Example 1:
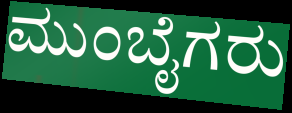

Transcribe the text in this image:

ಮುಂಬೈಗರು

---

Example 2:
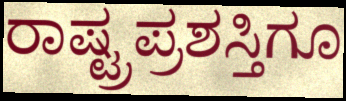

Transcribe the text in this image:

ರಾಷ್ಟ್ರಪ್ರಶಸ್ತಿಗೂ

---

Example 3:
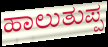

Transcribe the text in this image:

ಹಾಲುತುಪ್ಪ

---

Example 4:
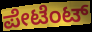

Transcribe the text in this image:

ಪೇಟೆಂಟ್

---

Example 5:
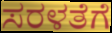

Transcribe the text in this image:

ಸರಳತೆಗೆ